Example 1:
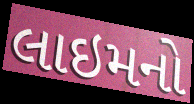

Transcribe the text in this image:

લાઇમનો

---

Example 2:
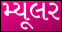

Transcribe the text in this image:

મ્યૂલર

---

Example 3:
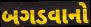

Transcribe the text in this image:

બગડવાનો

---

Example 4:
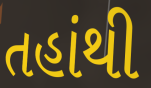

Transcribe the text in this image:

તહાંથી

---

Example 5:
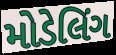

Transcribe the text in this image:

મોડેલિંગ